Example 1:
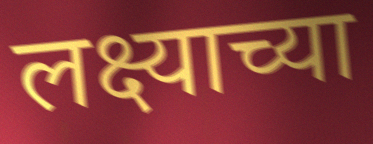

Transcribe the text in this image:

लक्ष्याच्या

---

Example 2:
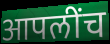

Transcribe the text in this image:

आपलींच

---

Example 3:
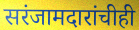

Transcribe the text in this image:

सरंजामदारांचीही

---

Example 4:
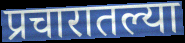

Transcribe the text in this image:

प्रचारातल्या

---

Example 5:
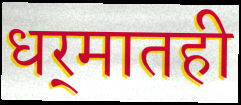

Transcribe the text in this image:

धर्मातही